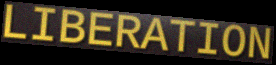
LIBERATION